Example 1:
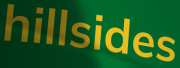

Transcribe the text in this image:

hillsides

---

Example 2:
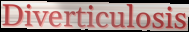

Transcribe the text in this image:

Diverticulosis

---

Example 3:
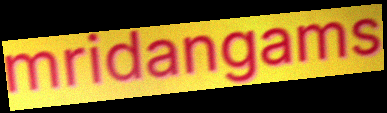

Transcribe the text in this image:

mridangams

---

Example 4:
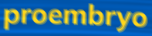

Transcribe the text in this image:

proembryo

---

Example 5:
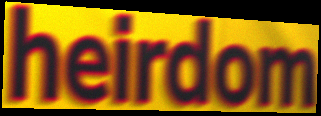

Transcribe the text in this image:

heirdom